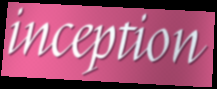
inception